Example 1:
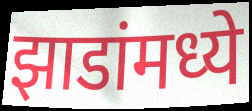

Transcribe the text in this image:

झाडांमध्ये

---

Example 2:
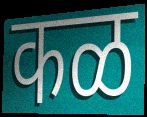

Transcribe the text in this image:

कळ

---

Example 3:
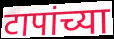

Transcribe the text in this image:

टापांच्या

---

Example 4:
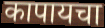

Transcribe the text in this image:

कापायचा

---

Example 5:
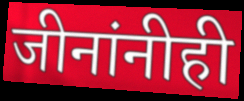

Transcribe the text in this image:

जीनांनीही